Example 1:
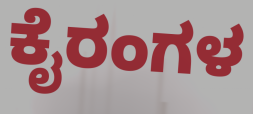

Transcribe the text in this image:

ಕೈರಂಗಳ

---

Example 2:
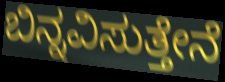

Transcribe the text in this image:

ಬಿನ್ನವಿಸುತ್ತೇನೆ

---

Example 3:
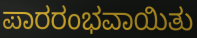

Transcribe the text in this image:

ಪಾರರಂಭವಾಯಿತು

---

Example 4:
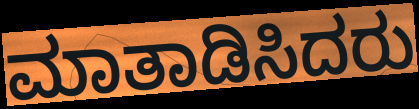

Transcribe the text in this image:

ಮಾತಾಡಿಸಿದರು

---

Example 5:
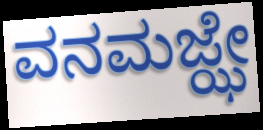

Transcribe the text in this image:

ವನಮಜ್ಝೇ